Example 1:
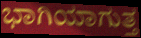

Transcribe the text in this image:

ಭಾಗಿಯಾಗುತ್ತ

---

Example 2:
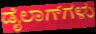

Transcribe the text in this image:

ಡೈಲಾಗ್‌ಗಳು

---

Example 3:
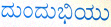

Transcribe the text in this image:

ದುಂದುಭಿಯು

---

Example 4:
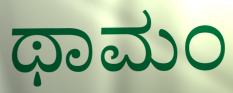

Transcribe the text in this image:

ಥಾಮಂ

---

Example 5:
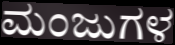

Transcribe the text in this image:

ಮಂಜುಗಳ